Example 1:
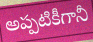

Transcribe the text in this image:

అప్పటికీగానీ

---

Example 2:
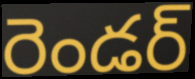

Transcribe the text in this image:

రెండర్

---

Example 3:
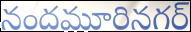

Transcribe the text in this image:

నందమూరినగర్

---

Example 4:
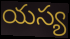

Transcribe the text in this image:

యస్య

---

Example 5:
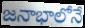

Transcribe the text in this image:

జనాభాలోనే